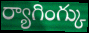
ర్యాగింగ్కు